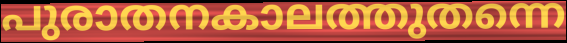
പുരാതനകാലത്തുതന്നെ